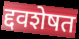
द्दवशेषत